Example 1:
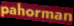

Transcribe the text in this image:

pahorman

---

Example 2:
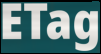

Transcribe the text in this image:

ETag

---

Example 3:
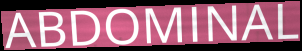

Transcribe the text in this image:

ABDOMINAL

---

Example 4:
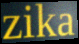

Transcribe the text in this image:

zika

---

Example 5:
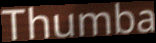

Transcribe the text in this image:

Thumba